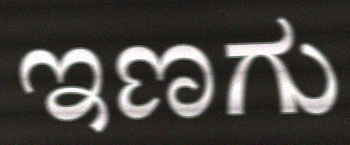
ಇಣಗು